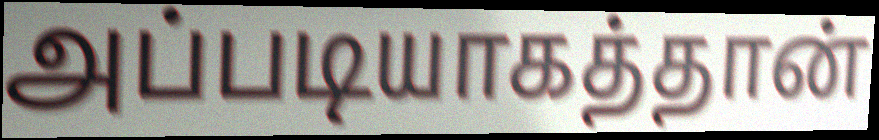
அப்படியாகத்தான்